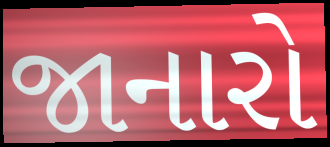
જાનારો